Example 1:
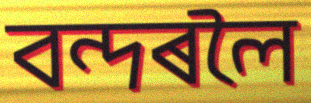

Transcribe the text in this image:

বন্দৰলৈ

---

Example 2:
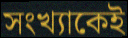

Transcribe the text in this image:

সংখ্যাকেই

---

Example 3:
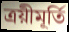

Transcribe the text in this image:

ত্ৰয়ীমূৰ্তি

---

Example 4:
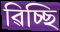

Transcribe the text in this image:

ৱিচ্ছি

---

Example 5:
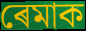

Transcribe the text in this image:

ৰেমাক